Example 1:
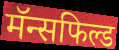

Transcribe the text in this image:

मॅन्सफिल्ड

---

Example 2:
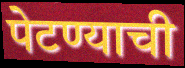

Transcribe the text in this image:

पेटण्याची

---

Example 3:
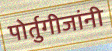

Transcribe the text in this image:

पोर्तुगीजांनी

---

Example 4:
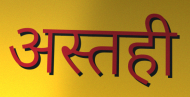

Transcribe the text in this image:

अस्तही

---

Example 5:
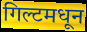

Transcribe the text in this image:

गिल्टमधून